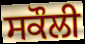
ਸਕੌਲੀ